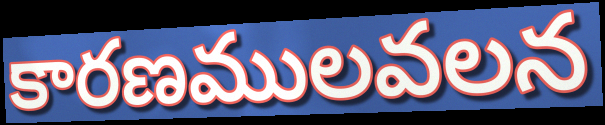
కారణములవలన